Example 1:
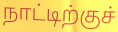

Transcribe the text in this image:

நாட்டிற்குச்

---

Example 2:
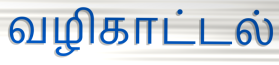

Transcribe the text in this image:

வழிகாட்டல்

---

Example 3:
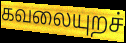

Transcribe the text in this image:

கவலையுறச்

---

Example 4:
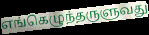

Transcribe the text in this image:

எங்கெழுந்தருளுவது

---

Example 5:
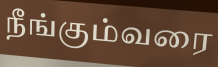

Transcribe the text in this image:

நீங்கும்வரை